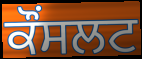
ਕੌਂਸਲਟ